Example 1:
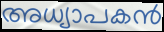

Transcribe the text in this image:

അധ്യാപകൻ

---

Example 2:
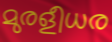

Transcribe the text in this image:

മുരളീധര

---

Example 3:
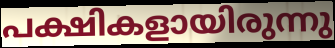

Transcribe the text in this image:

പക്ഷികളായിരുന്നു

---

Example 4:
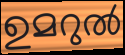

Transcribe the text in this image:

ഉമറുൽ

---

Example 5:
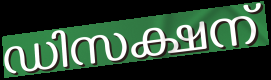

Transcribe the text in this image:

ഡിസക്ഷന്